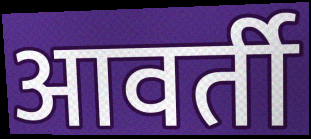
आवर्ती